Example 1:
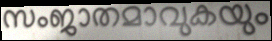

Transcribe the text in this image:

സംജാതമാവുകയും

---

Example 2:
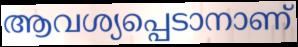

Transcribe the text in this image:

ആവശ്യപ്പെടാനാണ്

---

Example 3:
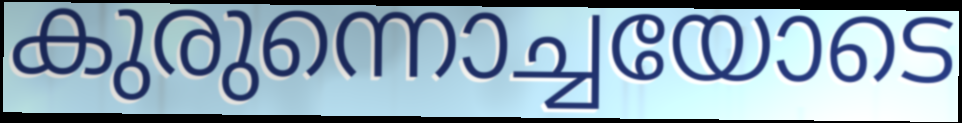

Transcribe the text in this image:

കുരുന്നൊച്ചയോടെ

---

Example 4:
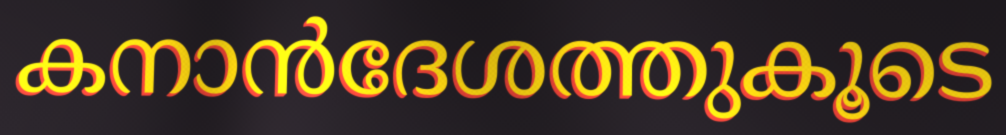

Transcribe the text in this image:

കനാൻദേശത്തുകൂടെ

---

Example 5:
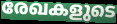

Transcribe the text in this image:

രേഖകളുടെ